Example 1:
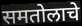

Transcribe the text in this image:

समतोलाचे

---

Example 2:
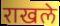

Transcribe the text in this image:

राखले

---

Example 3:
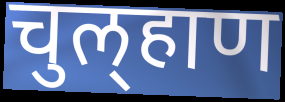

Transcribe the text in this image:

चुल्हाण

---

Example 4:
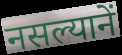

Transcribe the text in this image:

नसल्यानें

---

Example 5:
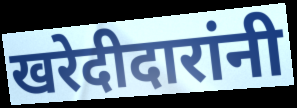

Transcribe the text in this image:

खरेदीदारांनी